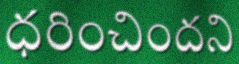
ధరించిందని